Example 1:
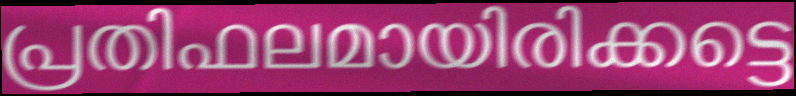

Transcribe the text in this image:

പ്രതിഫലമായിരിക്കട്ടെ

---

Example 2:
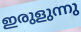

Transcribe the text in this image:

ഇരുളുന്നു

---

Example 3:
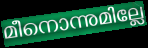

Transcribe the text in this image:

മീനൊന്നുമില്ലേ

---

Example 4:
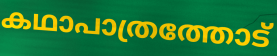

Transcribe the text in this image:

കഥാപാത്രത്തോട്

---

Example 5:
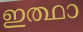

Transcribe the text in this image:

ഇത്ഥാ